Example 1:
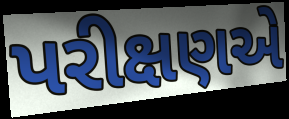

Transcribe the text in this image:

પરીક્ષણએ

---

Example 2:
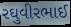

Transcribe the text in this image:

રઘુવીરભાઈ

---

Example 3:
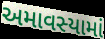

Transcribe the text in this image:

અમાવસ્યામાં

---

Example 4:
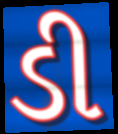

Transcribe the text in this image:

ડી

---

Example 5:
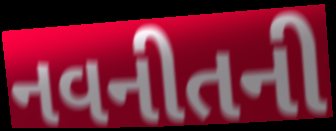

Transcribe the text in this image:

નવનીતની